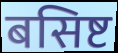
बसिष्ट